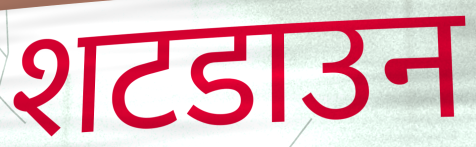
शटडाउन